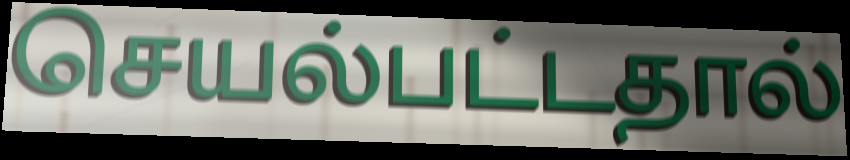
செயல்பட்டதால்